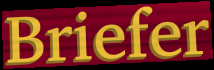
Briefer